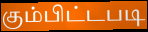
கும்பிட்டபடி